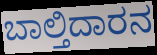
ಬಾಲ್ತಿದಾರನ